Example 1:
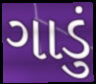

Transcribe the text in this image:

ગાડું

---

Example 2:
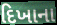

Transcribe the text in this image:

દિખાના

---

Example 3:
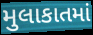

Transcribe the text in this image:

મુલાકાતમાં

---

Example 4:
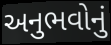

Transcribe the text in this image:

અનુભવોનું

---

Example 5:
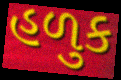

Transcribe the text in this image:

હળુક